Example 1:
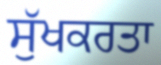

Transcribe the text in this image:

ਸੁੱਖਕਰਤਾ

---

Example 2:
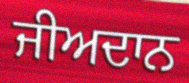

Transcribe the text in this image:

ਜੀਅਦਾਨ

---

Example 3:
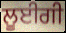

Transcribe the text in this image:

ਲੂਈਗੀ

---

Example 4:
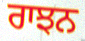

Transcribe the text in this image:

ਰਾਝਨ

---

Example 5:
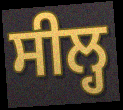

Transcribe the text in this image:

ਸੀਲ੍ਹ